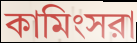
কামিংসরা